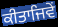
ਕੀਤਾਜਿਵੇਂ